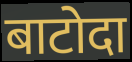
बाटोदा